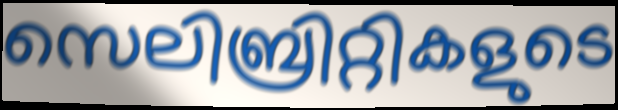
സെലിബ്രിറ്റികളുടെ